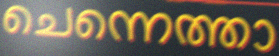
ചെന്നെത്താ